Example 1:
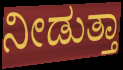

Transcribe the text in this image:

ನೀಡುತ್ತಾ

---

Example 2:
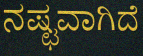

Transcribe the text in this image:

ನಷ್ಟವಾಗಿದೆ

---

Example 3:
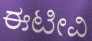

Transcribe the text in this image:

ಈಟೀವಿ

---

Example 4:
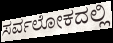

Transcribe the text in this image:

ಸರ್ವಲೋಕದಲ್ಲಿ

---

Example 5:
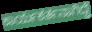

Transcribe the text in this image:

ಕಾರ್ಯಕರ್ತನಾಗಿದ್ದೆ